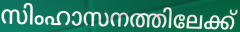
സിംഹാസനത്തിലേക്ക്